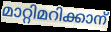
മാറ്റിമറിക്കാന്